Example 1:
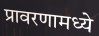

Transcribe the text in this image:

प्रावरणामध्ये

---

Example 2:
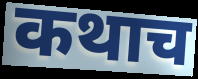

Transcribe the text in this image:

कथाच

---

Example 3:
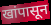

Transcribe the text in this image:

खांपासून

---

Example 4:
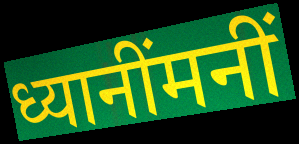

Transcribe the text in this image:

ध्यानींमनीं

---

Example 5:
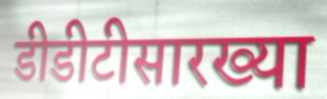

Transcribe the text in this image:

डीडीटीसारख्या